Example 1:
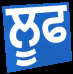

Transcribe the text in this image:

ਲੂਫ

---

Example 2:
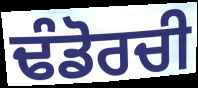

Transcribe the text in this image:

ਢੰਡੋਰਚੀ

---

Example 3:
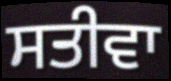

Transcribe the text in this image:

ਸਤੀਵਾ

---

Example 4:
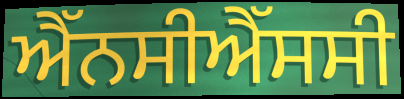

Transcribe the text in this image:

ਐੱਨਸੀਐੱਸਸੀ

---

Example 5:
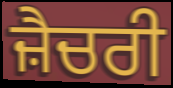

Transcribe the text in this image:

ਜ਼ੈਚਰੀ